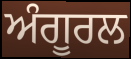
ਅੰਗੂਰਲ